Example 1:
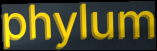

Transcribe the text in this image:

phylum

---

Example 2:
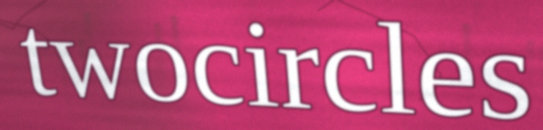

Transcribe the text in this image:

twocircles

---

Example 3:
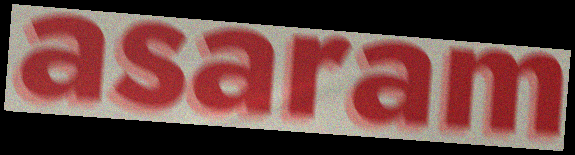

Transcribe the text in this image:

asaram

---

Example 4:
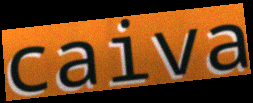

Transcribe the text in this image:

caiva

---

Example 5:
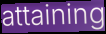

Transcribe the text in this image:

attaining